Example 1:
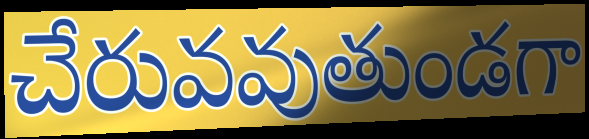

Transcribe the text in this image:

చేరువవుతుండగా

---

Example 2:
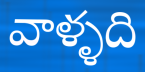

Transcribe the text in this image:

వాళ్ళది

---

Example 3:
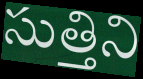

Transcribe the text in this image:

సుత్తిని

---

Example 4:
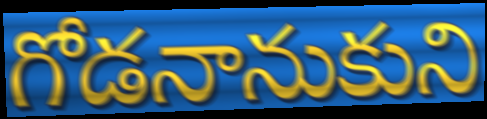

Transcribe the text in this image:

గోడనానుకుని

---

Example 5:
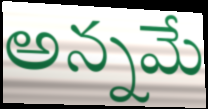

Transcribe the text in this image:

అన్నమే